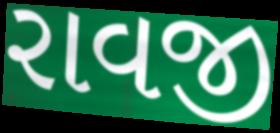
રાવજી